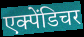
एक्पेंडिचर